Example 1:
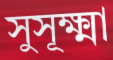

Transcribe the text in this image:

সুসূক্ষ্মা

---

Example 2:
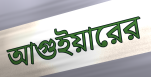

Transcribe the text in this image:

আগুইয়ারের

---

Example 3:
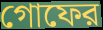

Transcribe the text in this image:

গোফের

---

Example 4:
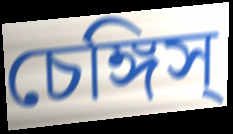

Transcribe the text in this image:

চেঙ্গিস্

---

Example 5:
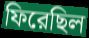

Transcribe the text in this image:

ফিরেছিল